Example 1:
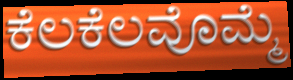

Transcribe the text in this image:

ಕೆಲಕೆಲವೊಮ್ಮೆ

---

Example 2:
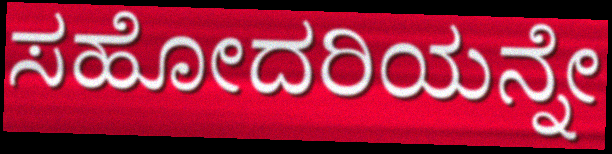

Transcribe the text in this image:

ಸಹೋದರಿಯನ್ನೇ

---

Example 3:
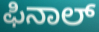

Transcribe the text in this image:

ಫಿನಾಲ್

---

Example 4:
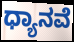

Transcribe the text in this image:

ಧ್ಯಾನವೆ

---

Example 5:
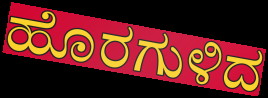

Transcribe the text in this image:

ಹೊರಗುಳಿದ